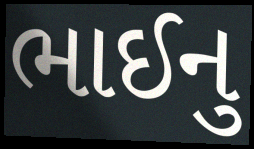
ભાઈનુ